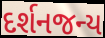
દર્શનજન્ય